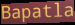
Bapatla